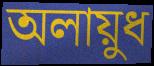
অলায়ুধ